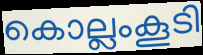
കൊല്ലംകൂടി